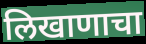
लिखाणाचा